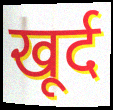
खूर्द